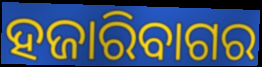
ହଜାରିବାଗର